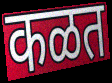
कळत